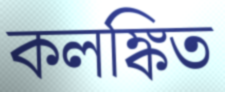
কলঙ্কিত